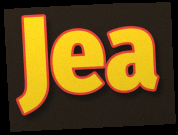
Jea